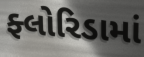
ફ્લોરિડામાં